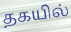
தகயில்